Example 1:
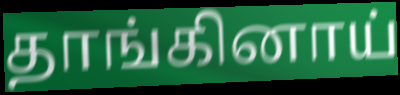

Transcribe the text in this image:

தாங்கினாய்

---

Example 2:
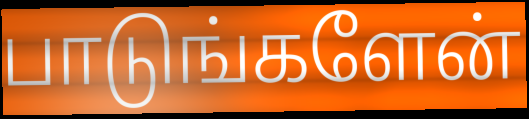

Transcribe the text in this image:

பாடுங்களேன்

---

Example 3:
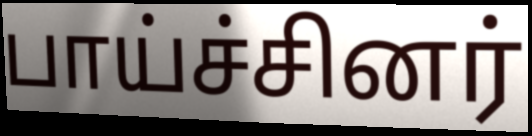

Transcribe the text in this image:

பாய்ச்சினர்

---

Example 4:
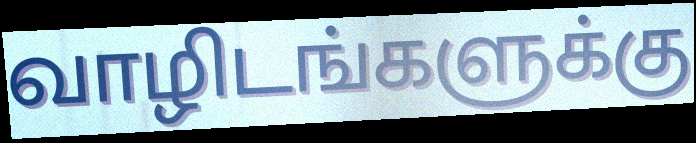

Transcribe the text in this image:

வாழிடங்களுக்கு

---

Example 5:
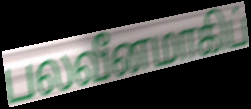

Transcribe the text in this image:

பலவீனமாகிப்